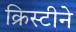
क्रिस्टीने